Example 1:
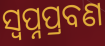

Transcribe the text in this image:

ସ୍ଵପ୍ନପ୍ରବଣ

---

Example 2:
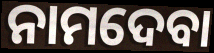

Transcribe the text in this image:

ନାମଦେବା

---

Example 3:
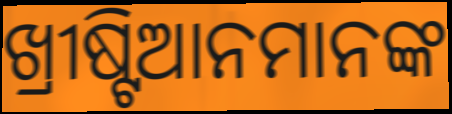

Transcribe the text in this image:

ଖ୍ରୀଷ୍ଟିଆନମାନଙ୍କ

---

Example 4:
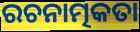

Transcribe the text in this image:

ରଚନାତ୍ମକତା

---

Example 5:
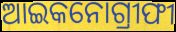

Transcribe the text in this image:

ଆଇକନୋଗ୍ରୀଫୀ